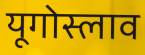
यूगोस्लाव